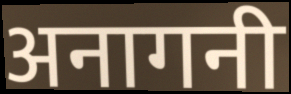
अनागनी